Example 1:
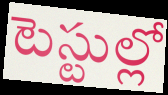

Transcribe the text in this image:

టెస్టుల్లో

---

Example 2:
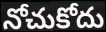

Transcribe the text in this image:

నోచుకోదు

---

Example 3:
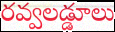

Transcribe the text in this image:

రవ్వలడ్డూలు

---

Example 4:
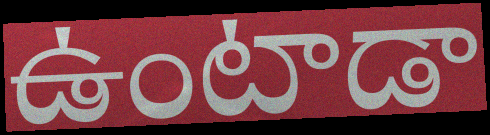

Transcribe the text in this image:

ఉంటాడా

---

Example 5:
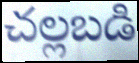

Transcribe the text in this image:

చల్లబడి